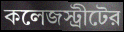
কলেজস্ট্রীটের